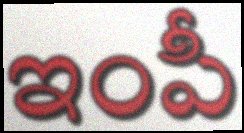
ఇంపీ